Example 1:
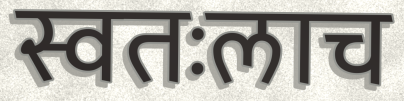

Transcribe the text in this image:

स्वतःलाच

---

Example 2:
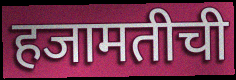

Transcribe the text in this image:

हजामतीची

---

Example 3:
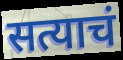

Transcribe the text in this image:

सत्याचं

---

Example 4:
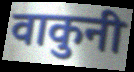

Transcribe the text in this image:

वाकुनी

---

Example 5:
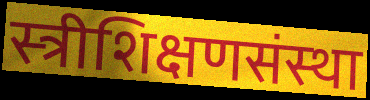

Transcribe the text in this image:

स्त्रीशिक्षणसंस्था